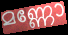
മണ്ണോ